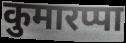
कुमारप्पा